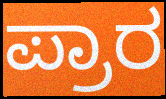
ಪ್ರಾರ